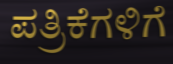
ಪತ್ರಿಕೆಗಳಿಗೆ